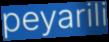
peyarili